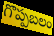
గొప్పబలం